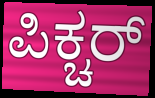
ಪಿಕ್ಚರ್